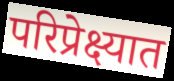
परिप्रेक्ष्यात